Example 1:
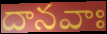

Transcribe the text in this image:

దానవాః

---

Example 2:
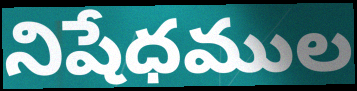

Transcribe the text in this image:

నిషేధముల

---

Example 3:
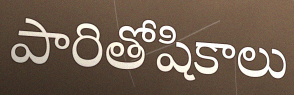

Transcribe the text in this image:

పారితోషికాలు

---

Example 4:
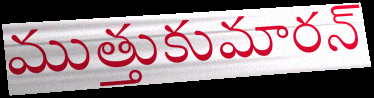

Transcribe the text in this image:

ముత్తుకుమారన్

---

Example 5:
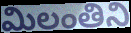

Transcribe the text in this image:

మిలంతిని